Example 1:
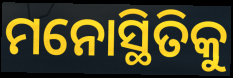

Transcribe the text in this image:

ମନୋସ୍ଥିତିକୁ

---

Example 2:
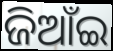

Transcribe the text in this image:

ଜିଆଁଇ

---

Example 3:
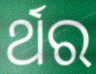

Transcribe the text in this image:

ର୍ଥର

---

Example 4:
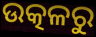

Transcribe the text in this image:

ଉତ୍କଳରୁ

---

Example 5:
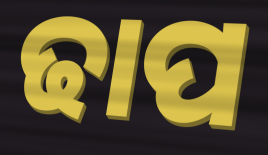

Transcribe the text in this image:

ଢାପ